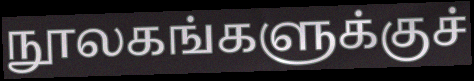
நூலகங்களுக்குச்